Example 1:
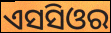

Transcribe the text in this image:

ଏସସିଓର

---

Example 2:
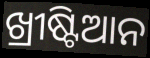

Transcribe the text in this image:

ଖ୍ରୀଷ୍ଟିଆନ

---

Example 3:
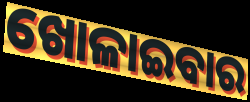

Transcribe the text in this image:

ଖୋଳାଇବାର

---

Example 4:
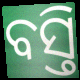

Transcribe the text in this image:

ବସ୍ତି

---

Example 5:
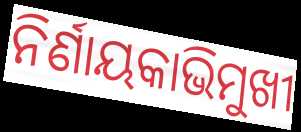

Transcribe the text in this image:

ନିର୍ଣାୟକାଭିମୁଖୀ